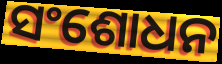
ସଂଶୋଧନ